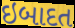
ઇબાદત